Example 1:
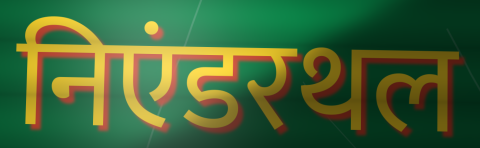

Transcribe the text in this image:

निएंडरथल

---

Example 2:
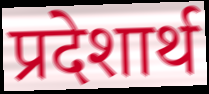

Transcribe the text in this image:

प्रदेशार्थ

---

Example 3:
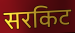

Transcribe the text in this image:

सरकिट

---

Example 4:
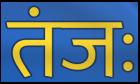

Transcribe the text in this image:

तंजः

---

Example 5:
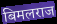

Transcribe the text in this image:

बिमलराज